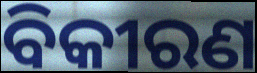
ବିକୀରଣ